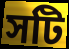
সটি